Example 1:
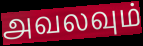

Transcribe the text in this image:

அவலவும்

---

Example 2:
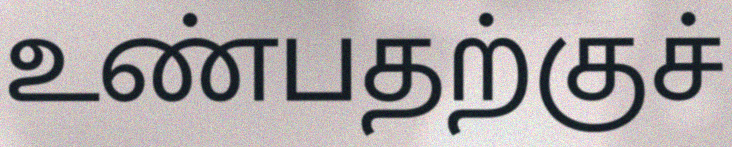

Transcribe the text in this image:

உண்பதற்குச்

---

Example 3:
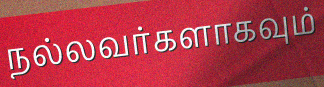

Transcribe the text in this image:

நல்லவர்களாகவும்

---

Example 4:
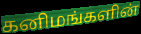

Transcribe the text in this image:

கனிமங்களின்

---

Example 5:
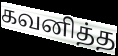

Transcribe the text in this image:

கவனித்த